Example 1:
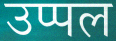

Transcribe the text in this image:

उप्पल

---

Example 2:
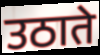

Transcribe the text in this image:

उठाते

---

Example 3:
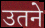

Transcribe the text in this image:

उतने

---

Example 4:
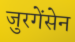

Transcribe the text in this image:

जुरगेंसेन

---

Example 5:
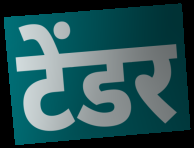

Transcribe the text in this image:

टेंडर